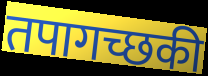
तपागच्छकी